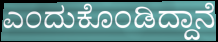
ಎಂದುಕೊಂಡಿದ್ದಾನೆ